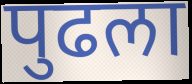
पुढला